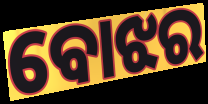
ବୋଝର